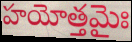
హయోత్తమైః